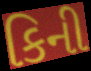
કિની